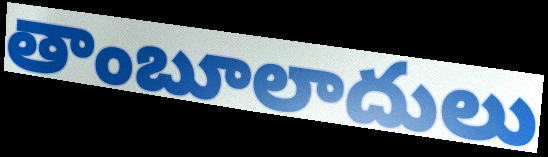
తాంబూలాదులు